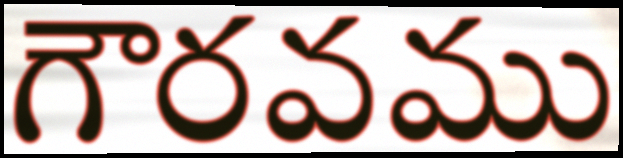
గౌరవము